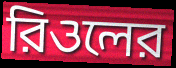
রিওলের